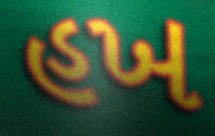
હખ